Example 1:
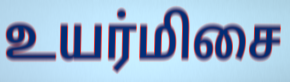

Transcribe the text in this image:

உயர்மிசை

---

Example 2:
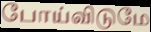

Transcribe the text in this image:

போய்விடுமே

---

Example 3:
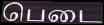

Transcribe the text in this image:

பெடை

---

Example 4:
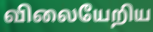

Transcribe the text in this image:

விலையேறிய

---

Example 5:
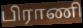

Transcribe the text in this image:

பிராணி